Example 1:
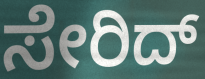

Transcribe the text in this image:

ಸೇರಿದ್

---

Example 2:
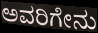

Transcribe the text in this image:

ಅವರಿಗೇನು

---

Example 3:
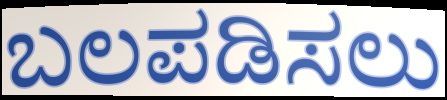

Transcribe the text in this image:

ಬಲಪಡಿಸಲು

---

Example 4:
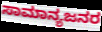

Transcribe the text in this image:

ಸಾಮಾನ್ಯಜನರ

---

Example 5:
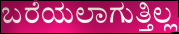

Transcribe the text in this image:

ಬರೆಯಲಾಗುತ್ತಿಲ್ಲ